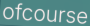
ofcourse